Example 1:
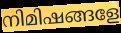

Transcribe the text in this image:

നിമിഷങ്ങളേ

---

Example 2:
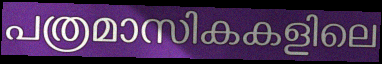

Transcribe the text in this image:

പത്രമാസികകളിലെ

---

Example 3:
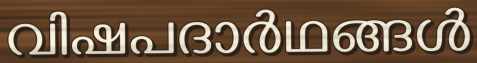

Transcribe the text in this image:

വിഷപദാർഥങ്ങൾ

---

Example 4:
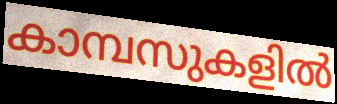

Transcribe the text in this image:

കാമ്പസുകളിൽ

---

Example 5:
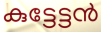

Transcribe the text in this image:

കുട്ടേട്ടൻ